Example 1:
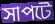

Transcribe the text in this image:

সাপটে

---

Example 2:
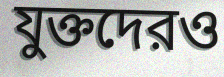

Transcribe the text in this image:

যুক্তদেরও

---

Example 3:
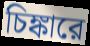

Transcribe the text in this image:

চিঙ্কারে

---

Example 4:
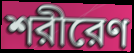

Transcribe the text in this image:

শরীরেণ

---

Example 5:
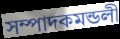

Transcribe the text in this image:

সম্পাদকমন্ডলী